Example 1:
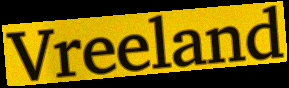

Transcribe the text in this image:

Vreeland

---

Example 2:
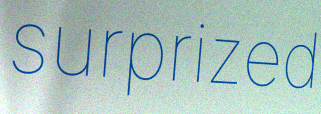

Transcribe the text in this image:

surprized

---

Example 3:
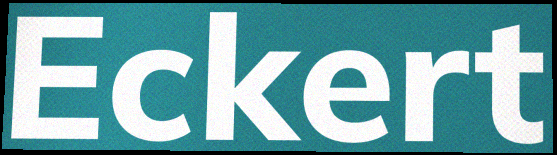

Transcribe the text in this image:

Eckert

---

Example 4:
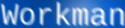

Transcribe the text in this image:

Workman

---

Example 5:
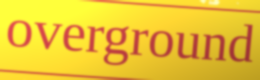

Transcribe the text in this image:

overground